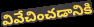
వివేచించడానికి